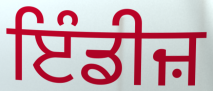
ਇੰਡੀਜ਼